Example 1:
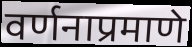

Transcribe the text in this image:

वर्णनाप्रमाणे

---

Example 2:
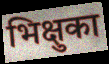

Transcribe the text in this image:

भिक्षुका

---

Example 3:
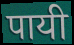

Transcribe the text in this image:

पायी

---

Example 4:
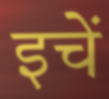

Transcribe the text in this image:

इचें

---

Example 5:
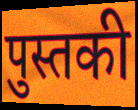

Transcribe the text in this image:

पुस्तकी